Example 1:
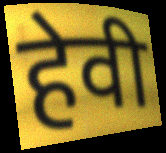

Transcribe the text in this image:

हेवी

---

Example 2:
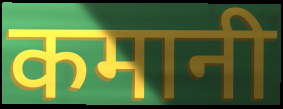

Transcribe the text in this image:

कमानी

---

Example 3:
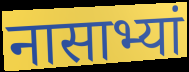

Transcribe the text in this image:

नासाभ्यां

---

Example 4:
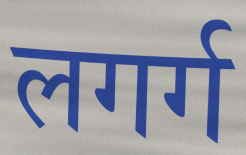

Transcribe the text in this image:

लगर्ग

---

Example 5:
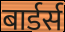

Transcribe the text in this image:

बार्डर्स